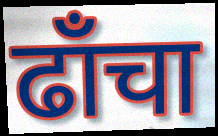
ढाँचा